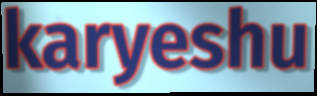
karyeshu